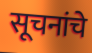
सूचनांचे